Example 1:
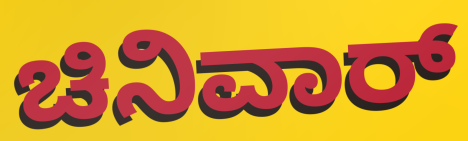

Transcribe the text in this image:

ಚಿನಿವಾರ್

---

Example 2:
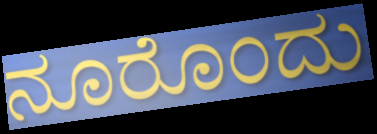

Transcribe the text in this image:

ನೂರೊಂದು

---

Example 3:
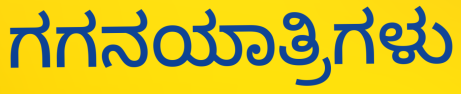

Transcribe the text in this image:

ಗಗನಯಾತ್ರಿಗಳು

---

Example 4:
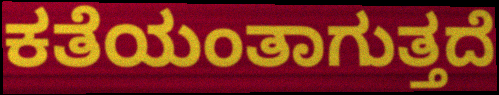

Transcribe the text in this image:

ಕತೆಯಂತಾಗುತ್ತದೆ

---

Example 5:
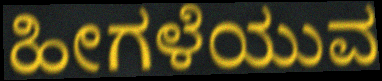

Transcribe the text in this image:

ಹೀಗಳೆಯುವ